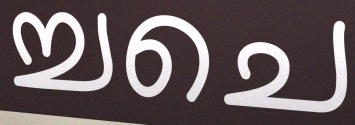
ച്ചചെ